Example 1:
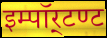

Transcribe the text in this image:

इम्पॉर्टण्ट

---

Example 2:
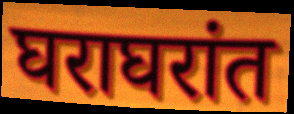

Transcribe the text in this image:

घराघरांत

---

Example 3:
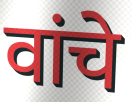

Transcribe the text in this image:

वांचे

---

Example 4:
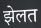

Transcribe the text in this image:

झेलत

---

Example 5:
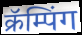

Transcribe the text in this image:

क्रॅम्पिंग